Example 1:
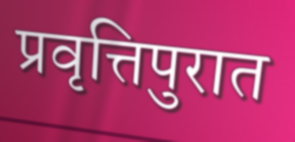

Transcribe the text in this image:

प्रवृत्तिपुरात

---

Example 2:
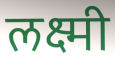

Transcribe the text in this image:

लक्ष्मी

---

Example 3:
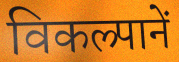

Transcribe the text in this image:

विकल्पानें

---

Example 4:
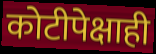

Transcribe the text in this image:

कोटीपेक्षाही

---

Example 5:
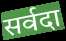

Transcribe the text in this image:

सर्वदा